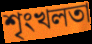
শৃংখলতা